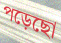
পড়েছো